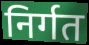
निर्गत